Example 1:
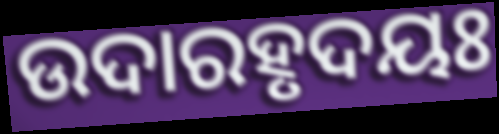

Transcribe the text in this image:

ଉଦାରହୃଦୟଃ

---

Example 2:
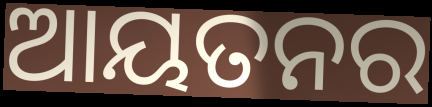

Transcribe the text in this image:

ଆୟତନର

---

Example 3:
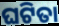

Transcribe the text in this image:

ଘଟିତା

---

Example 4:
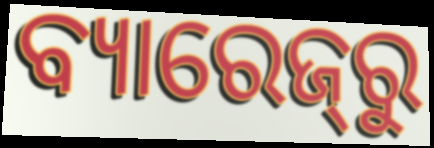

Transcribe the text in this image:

ବ୍ୟାରେଜ୍‌ରୁ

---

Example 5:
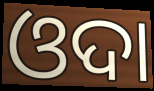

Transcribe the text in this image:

ଓଦା